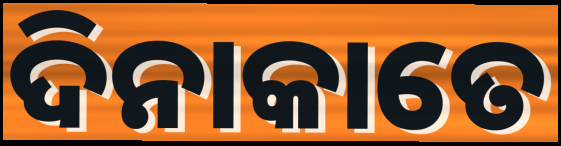
ଦିନାକାତେ